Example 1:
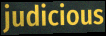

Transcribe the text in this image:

judicious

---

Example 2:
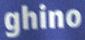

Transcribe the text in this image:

ghino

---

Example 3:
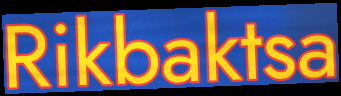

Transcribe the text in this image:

Rikbaktsa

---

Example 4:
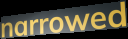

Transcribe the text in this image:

narrowed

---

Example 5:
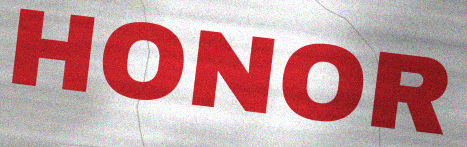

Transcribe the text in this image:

HONOR